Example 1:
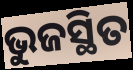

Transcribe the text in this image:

ଭୁଜସ୍ଥିତ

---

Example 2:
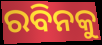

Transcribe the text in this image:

ରବିନକୁ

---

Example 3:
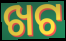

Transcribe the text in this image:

ଖଟ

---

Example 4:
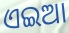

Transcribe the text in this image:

ଏଇଆ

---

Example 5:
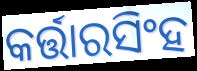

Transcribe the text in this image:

କର୍ତ୍ତାରସିଂହ